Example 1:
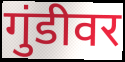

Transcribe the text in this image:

गुंडीवर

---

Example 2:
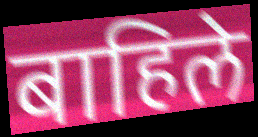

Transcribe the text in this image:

बाहिले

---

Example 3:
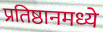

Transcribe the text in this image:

प्रतिष्ठानमध्ये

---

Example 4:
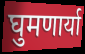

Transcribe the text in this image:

घुमणार्या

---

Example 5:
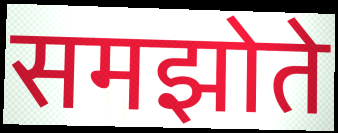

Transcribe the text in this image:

समझोते